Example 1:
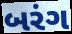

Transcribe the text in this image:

બરંગ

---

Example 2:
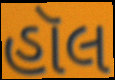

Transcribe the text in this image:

હૉલ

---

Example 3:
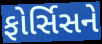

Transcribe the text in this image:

ફોર્સિસને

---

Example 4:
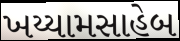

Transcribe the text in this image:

ખય્યામસાહેબ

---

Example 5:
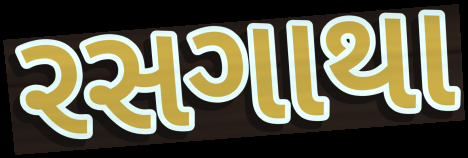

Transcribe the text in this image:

રસગાથા